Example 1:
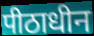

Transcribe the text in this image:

पीठाधीन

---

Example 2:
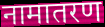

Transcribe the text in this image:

नामातरण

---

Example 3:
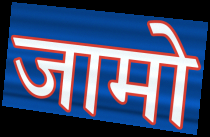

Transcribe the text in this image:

जामो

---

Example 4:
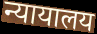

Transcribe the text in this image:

न्यायालय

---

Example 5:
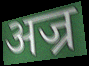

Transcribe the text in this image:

अज्र